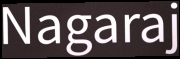
Nagaraj